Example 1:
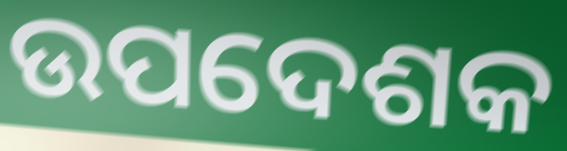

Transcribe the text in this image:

ଉପଦେଶକ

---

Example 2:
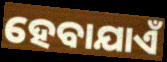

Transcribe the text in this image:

ହେବାଯାଏଁ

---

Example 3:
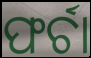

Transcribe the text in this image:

ଫର୍ଚା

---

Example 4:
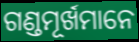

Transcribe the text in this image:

ଗଣ୍ଡମୂର୍ଖମାନେ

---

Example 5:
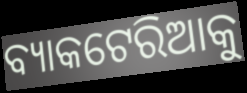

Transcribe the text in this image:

ବ୍ୟାକଟେରିଆକୁ